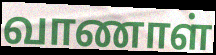
வாணாள்